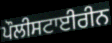
ਪੌਲੀਸਟਾਈਰੀਨ